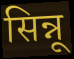
सिन्नू